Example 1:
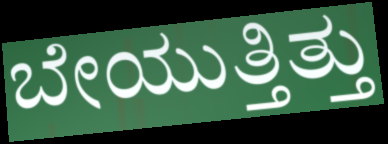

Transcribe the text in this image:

ಬೇಯುತ್ತಿತ್ತು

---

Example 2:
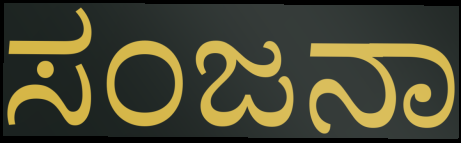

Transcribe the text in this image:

ಸಂಜನಾ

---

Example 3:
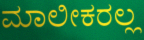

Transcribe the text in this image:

ಮಾಲೀಕರಲ್ಲ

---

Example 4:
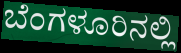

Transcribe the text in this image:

ಬೆಂಗಳೂರಿನಲ್ಲಿ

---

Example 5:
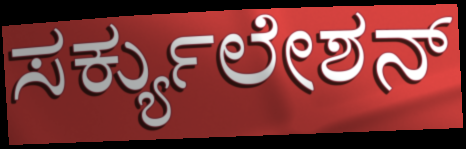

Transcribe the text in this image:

ಸರ್ಕ್ಯುಲೇಶನ್